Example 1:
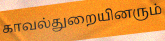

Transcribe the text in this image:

காவல்துறையினரும்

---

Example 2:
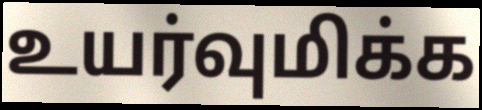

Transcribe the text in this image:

உயர்வுமிக்க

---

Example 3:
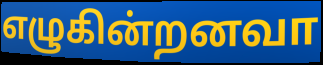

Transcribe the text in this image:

எழுகின்றனவா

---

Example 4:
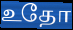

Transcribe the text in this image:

உதோ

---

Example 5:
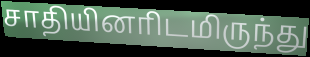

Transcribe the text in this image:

சாதியினரிடமிருந்து